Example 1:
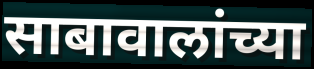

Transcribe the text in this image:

साबावालांच्या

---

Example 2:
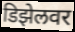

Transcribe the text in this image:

डिझेलवर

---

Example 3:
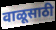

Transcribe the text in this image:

वाळूसाठी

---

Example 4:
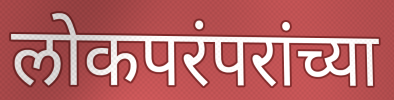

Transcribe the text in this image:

लोकपरंपरांच्या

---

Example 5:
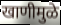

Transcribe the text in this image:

खाणीमुळे